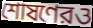
শোষণেরও